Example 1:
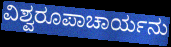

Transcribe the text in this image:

ವಿಶ್ವರೂಪಾಚಾರ್ಯನು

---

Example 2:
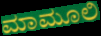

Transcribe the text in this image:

ಮಾಮೂಲಿ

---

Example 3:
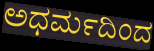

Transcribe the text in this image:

ಅಧರ್ಮದಿಂದ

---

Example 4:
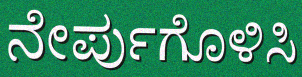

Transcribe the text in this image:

ನೇರ್ಪುಗೊಳಿಸಿ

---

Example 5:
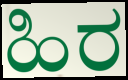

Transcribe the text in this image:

ಹಿರ